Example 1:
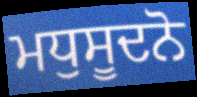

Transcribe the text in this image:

ਮਧੁਸੂਦਨੋ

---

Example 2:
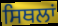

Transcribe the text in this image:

ਸਿਥਲਾਂ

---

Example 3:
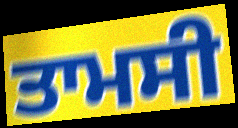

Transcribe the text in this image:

ਤਾਮਸੀ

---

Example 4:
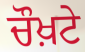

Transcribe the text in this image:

ਚੌਖ਼ਟੇ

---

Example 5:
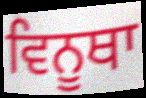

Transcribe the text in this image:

ਵਿਨੂਥਾ